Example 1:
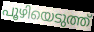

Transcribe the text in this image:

പൂഴിയെടുത്ത്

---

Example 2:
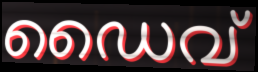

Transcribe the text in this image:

ഡൈവ്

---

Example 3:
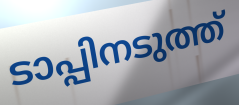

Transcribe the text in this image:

ടാപ്പിനടുത്ത്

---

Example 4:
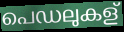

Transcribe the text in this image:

പെഡലുകള്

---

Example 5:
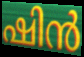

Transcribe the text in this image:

ഷിൻ